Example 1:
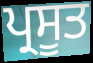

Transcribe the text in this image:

ਪ੍ਰਸੂਤ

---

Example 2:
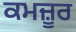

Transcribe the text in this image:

ਕਮਜ਼ੂਰ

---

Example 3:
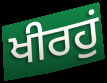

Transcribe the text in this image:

ਖੀਰਹੁਂ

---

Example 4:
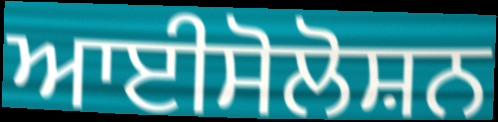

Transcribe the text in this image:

ਆਈਸੋਲੋਸ਼ਨ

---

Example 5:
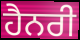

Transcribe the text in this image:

ਹੈਨਰੀ